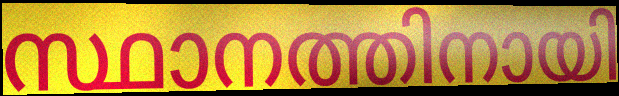
സ്ഥാനത്തിനായി